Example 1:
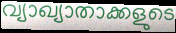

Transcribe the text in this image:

വ്യാഖ്യാതാക്കളുടെ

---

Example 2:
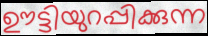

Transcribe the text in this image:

ഊട്ടിയുറപ്പിക്കുന്ന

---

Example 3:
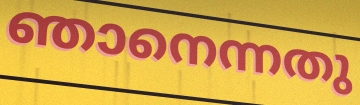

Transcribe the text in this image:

ഞാനെന്നതു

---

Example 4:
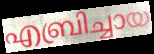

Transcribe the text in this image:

എബ്രിച്ചായ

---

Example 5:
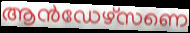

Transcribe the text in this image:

ആൻഡേഴ്സണെ